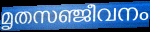
മൃതസഞ്ജീവനം